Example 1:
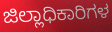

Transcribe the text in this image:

ಜಿಲ್ಲಾಧಿಕಾರಿಗಳ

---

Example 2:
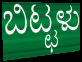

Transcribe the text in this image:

ಬಿಟ್ಟಳು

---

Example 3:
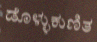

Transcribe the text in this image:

ಡೊಳ್ಳುಕುಣಿತ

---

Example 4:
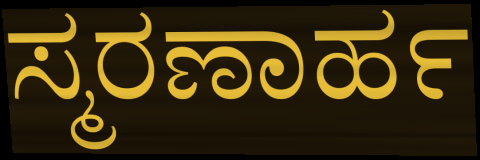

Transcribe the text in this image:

ಸ್ಮರಣಾರ್ಹ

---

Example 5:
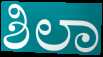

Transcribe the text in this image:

ಶಿಲಾ